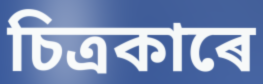
চিত্ৰকাৰে